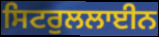
ਸਿਟਰੁਲਲਾਈਨ